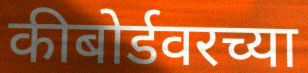
कीबोर्डवरच्या